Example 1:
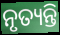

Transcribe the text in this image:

ନୃତ୍ୟନ୍ତି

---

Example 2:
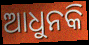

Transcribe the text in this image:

ଆଧୁନକି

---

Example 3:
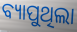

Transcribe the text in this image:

ବ୍ୟାପୁଥିଲା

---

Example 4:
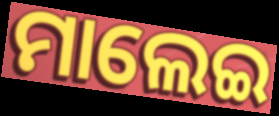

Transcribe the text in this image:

ମାଲେଇ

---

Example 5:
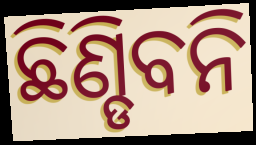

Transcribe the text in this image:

ଛିଣ୍ଡିବନି